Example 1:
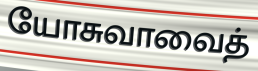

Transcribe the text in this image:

யோசுவாவைத்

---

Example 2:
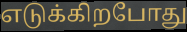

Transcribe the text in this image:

எடுக்கிறபோது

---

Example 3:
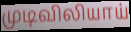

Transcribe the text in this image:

முடிவிலியாய்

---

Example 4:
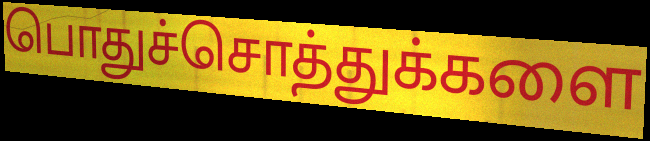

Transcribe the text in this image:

பொதுச்சொத்துக்களை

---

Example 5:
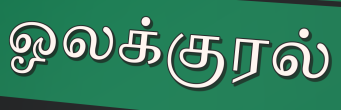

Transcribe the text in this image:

ஓலக்குரல்